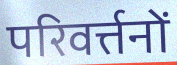
परिवर्त्तनों